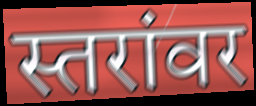
स्तरांवर